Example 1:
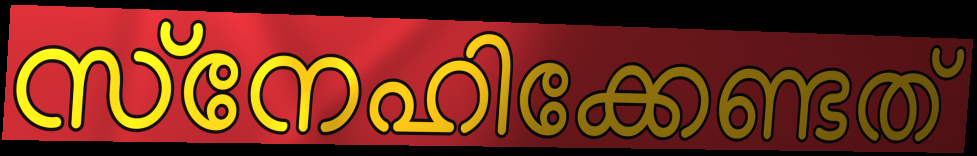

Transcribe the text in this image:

സ്‌നേഹിക്കേണ്ടത്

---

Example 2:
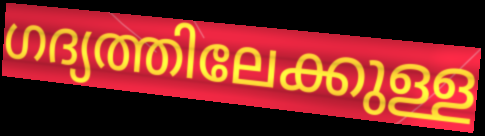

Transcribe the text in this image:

ഗദ്യത്തിലേക്കുള്ള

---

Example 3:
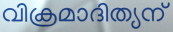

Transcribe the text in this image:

വിക്രമാദിത്യന്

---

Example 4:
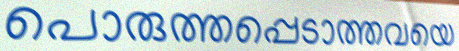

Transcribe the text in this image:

പൊരുത്തപ്പെടാത്തവയെ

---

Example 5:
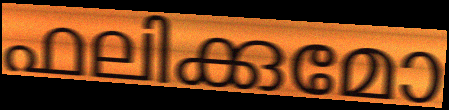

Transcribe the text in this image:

ഫലിക്കുമോ